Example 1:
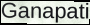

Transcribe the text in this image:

Ganapati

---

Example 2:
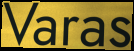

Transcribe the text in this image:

Varas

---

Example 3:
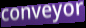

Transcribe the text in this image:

conveyor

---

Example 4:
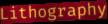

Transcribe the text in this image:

Lithography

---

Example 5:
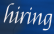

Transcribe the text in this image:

hiring